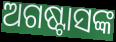
ଅଗଷ୍ଟାସଙ୍କ